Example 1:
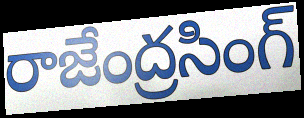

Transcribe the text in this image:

రాజేంద్రసింగ్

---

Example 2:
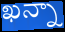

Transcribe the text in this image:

ఖన్నా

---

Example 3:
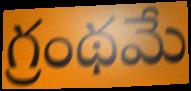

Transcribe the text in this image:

గ్రంథమే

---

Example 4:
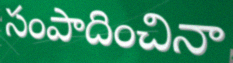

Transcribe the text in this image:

సంపాదించినా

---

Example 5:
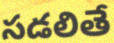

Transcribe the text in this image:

సడలితే